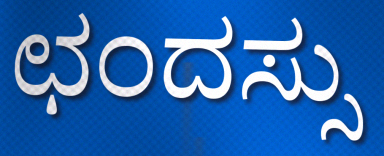
ಛಂದಸ್ಸು